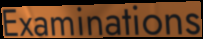
Examinations